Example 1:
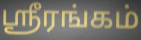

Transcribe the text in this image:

ஸ்ரீரங்கம்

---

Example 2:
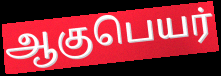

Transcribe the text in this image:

ஆகுபெயர்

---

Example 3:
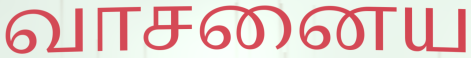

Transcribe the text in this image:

வாசனைய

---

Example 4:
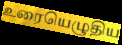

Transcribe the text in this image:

உரையெழுதிய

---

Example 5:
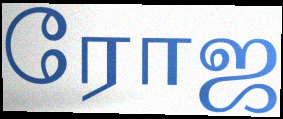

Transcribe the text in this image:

ரோஜ